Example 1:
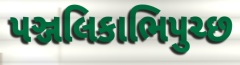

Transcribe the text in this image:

પઞ્જલિકાભિપુચ્છ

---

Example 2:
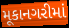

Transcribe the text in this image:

મૂકાનગરીમાં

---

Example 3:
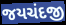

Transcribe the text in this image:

જયચંદજી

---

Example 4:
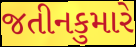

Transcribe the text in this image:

જતીનકુમારે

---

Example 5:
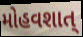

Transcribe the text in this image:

મોહવશાત્